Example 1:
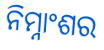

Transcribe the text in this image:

ନିମ୍ନାଂଶର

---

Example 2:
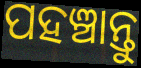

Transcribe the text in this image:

ପହଞ୍ଚାନ୍ତୁ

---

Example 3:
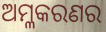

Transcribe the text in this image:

ଅମ୍ଳକରଣର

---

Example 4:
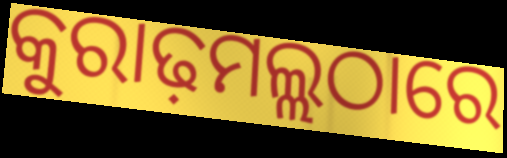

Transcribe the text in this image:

କୁରାଢ଼ମଲ୍ଲଠାରେ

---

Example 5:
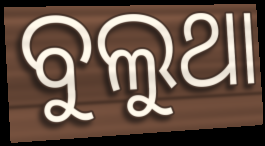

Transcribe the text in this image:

ବୁଲୁଥା